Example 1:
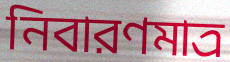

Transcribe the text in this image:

নিবারণমাত্র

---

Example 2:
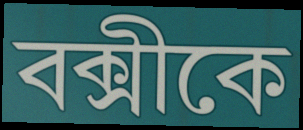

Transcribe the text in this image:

বক্সীকে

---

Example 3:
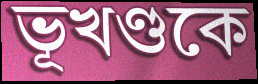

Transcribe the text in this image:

ভূখণ্ডকে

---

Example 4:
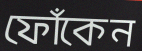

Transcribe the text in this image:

ফোঁকেন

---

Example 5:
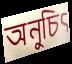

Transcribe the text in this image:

অনুচিৎ